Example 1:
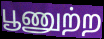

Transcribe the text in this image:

பூணுற்ற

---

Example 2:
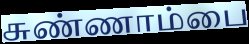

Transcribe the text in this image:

சுண்ணாம்பை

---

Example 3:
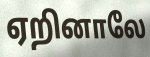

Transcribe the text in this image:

ஏறினாலே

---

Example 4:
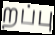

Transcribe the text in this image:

றப்பு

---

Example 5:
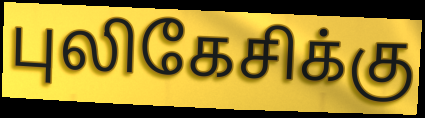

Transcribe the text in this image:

புலிகேசிக்கு